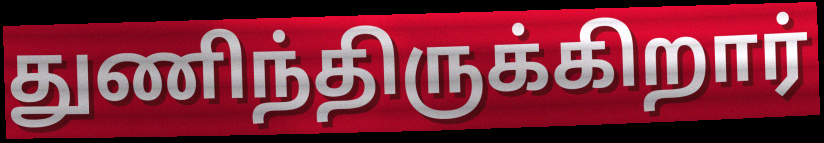
துணிந்திருக்கிறார்